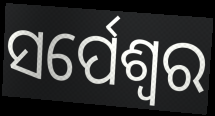
ସର୍ପେଶ୍ୱର